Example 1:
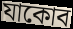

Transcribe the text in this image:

যাকোব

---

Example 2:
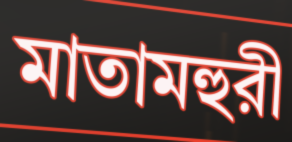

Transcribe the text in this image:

মাতামহুরী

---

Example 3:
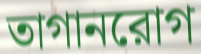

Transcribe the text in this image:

তাগানরোগ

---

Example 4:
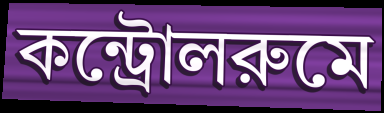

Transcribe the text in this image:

কন্ট্রোলরুমে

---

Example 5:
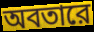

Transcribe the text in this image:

অবতারে